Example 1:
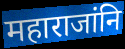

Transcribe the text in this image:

महाराजांनि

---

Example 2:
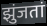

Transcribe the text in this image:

झुंजतां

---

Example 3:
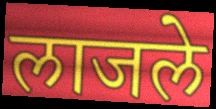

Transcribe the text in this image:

लाजले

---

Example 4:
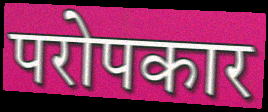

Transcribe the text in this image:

परोपकार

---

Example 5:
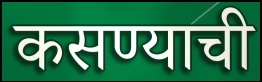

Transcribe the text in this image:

कसण्याची